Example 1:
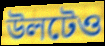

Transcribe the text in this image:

উলটেও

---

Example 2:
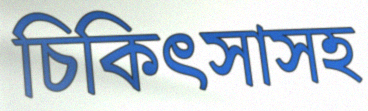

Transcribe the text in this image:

চিকিৎসাসহ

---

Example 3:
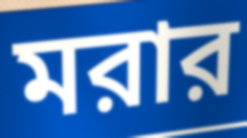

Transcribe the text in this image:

মরার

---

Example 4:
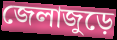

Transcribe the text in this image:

জেলাজুড়ে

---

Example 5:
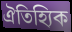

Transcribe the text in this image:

ঐতিহ্যিক